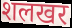
शलखर